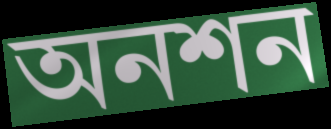
অনশন